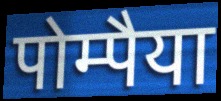
पोम्पैया